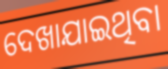
ଦେଖାଯାଇଥିବା